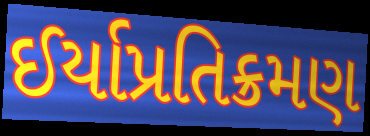
ઈર્યાપ્રતિક્રમણ